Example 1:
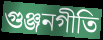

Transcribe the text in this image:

গুঞ্জনগীতি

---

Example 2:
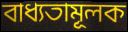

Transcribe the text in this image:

বাধ্যতামূলক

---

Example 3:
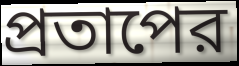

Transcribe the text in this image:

প্রতাপের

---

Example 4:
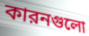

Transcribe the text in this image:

কারনগুলো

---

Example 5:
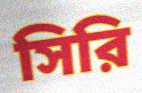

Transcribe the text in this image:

সিরি